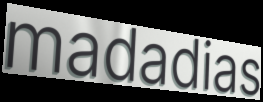
madadias